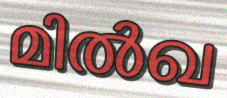
മിൽഖ